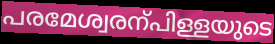
പരമേശ്വരന്പിള്ളയുടെ